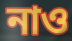
নাও